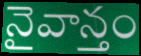
నైవాన్తం